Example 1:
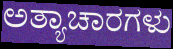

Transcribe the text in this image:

ಅತ್ಯಾಚಾರಗಳು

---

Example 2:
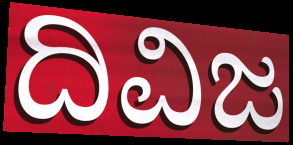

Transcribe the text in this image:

ದಿವಿಜ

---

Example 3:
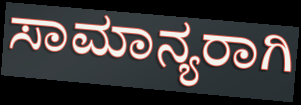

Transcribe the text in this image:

ಸಾಮಾನ್ಯರಾಗಿ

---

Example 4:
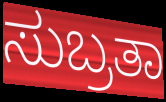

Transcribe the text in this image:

ಸುಬ್ರತಾ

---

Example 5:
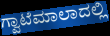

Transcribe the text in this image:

ಗ್ವಾಟೆಮಾಲಾದಲ್ಲಿ